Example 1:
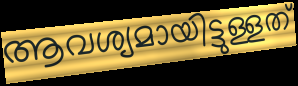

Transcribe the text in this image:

ആവശ്യമായിട്ടുള്ളത്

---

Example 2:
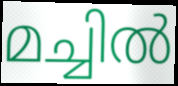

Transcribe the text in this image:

മച്ചിൽ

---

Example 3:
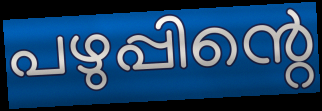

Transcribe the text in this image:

പഴുപ്പിന്റെ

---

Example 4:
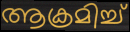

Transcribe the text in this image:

ആക്രമിച്ച്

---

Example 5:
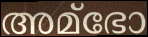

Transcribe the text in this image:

അമ്ഭോ